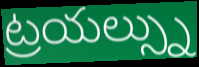
ట్రయల్స్ను